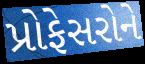
પ્રોફેસરોને